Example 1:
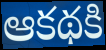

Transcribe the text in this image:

ఆకథకి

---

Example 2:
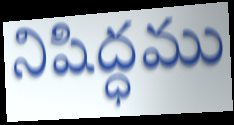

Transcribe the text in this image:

నిషిద్ధము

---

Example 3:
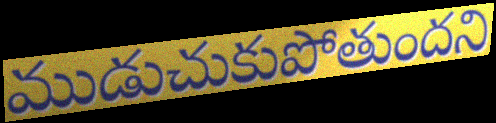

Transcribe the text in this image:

ముడుచుకుపోతుందని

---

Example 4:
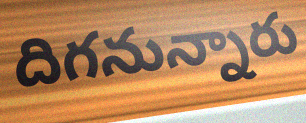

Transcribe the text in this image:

దిగనున్నారు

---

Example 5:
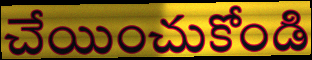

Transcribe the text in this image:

చేయించుకోండి